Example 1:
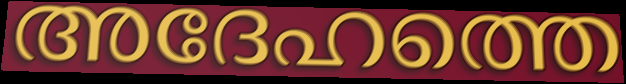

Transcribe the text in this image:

അദേഹത്തെ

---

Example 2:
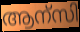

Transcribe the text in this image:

ആന്സി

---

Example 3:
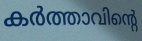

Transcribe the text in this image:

കർത്താവിന്റെ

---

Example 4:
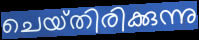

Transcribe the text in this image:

ചെയ്‌തിരിക്കുന്നു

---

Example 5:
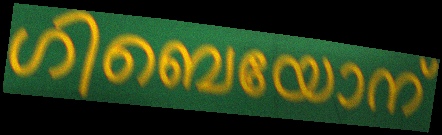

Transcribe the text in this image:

ഗിബെയോന്